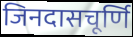
जिनदासचूर्णि